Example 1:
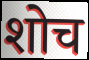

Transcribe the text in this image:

शोच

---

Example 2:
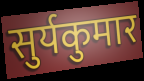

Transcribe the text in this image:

सुर्यकुमार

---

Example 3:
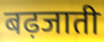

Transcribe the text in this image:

बढ़जाती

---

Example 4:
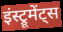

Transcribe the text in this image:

इंस्ट्रूमेंट्स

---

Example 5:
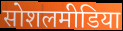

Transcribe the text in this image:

सोशलमीडिया